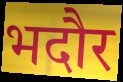
भदौर